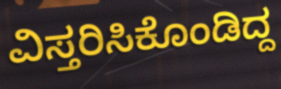
ವಿಸ್ತರಿಸಿಕೊಂಡಿದ್ದ